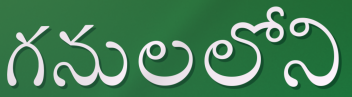
గనులలోని